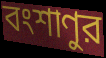
বংশাণুর